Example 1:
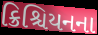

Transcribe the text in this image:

ક્રિશ્ચિયનના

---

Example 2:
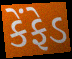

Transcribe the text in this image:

કેંફેડ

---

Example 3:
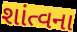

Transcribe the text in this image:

શાંત્વના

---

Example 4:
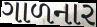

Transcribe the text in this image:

ગાળનાર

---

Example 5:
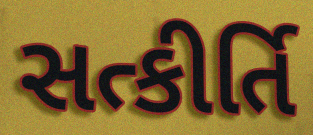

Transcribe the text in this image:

સત્કીર્તિ